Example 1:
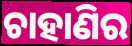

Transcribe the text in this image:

ଚାହାଣିର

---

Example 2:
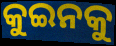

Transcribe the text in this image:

କୁଇନକୁ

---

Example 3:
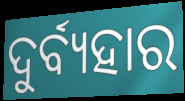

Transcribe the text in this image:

ଦୁର୍ବ୍ୟହାର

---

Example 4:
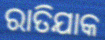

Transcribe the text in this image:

ରାତିଯାକ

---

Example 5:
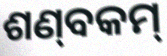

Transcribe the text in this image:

ଶଣ୍‌ବକମ୍